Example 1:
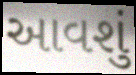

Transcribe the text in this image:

આવશું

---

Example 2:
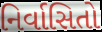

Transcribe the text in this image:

નિર્વાસિતો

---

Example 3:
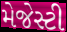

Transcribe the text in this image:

મેજેસ્ટી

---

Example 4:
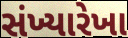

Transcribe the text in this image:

સંખ્યારેખા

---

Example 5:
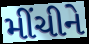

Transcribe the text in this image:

મીંચીને